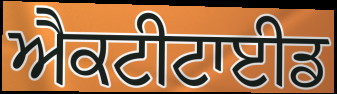
ਐਕਟੀਟਾਈਡ